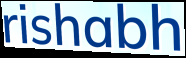
rishabh